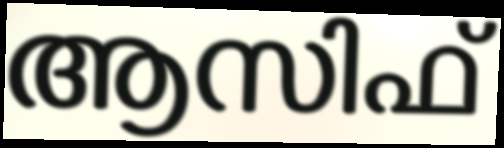
ആസിഫ്